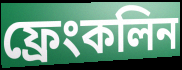
ফ্ৰেংকলিন